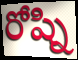
రోష్ని